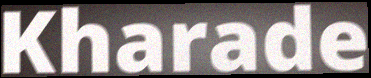
Kharade